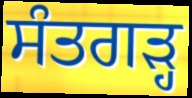
ਸੰਤਗੜ੍ਹ